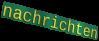
nachrichten